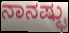
ನಾನಷ್ಟು